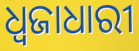
ଧ୍ଵଜାଧାରୀ